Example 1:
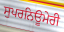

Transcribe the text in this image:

ਸੁਪਰਨਿਊਮੇਰੀ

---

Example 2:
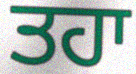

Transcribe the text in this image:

ਤਹਾ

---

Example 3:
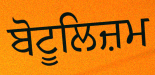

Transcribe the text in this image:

ਬੋਟੂਲਿਜ਼ਮ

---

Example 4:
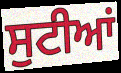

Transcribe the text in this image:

ਸੁਟੀਆਂ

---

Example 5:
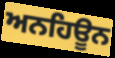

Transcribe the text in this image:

ਅਨਹਿਊਨ